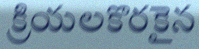
క్రియలకొరకైన